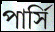
পার্সি